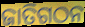
ଜାତିଗଠନ